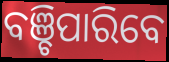
ବଞ୍ଚିପାରିବେ